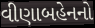
વીણાબહેનનો